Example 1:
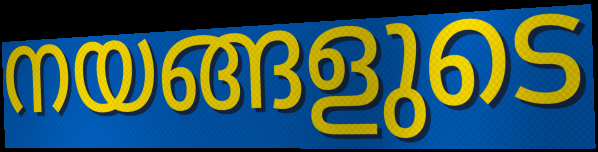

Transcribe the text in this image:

നയങ്ങളുടെ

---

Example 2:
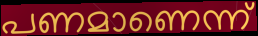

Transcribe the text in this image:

പണമാണെന്ന്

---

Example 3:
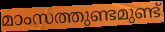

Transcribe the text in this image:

മാംസത്തുണ്ടമുണ്ട്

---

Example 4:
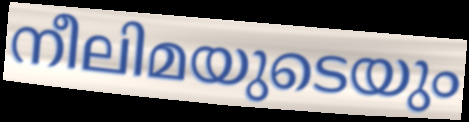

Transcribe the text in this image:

നീലിമയുടെയും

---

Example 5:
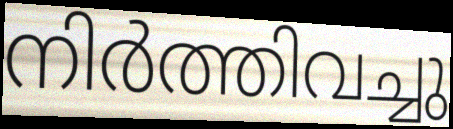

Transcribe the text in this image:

നിർത്തിവച്ചു